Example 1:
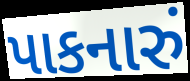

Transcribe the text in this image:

પાકનારું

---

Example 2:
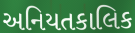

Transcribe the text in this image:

અનિયતકાલિક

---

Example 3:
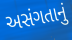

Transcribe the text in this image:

અસંગતાનું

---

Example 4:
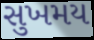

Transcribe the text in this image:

સુખમય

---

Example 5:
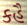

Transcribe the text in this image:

કહૈ